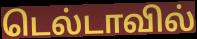
டெல்டாவில்